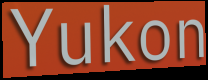
Yukon